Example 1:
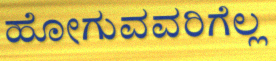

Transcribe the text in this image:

ಹೋಗುವವರಿಗೆಲ್ಲ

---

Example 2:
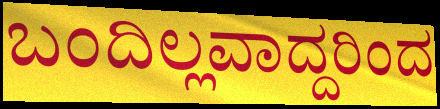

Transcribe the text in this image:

ಬಂದಿಲ್ಲವಾದ್ದರಿಂದ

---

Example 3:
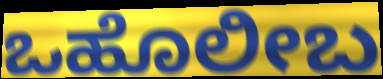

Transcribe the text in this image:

ಒಹೊಲೀಬ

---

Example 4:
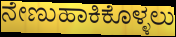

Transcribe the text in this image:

ನೇಣುಹಾಕಿಕೊಳ್ಳಲು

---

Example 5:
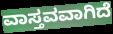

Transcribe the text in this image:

ವಾಸ್ತವವಾಗಿದೆ